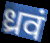
ध्रवं